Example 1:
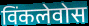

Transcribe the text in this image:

विंकलेवोस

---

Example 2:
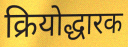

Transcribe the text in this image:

क्रियोद्धारक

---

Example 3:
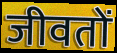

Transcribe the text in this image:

जीवतों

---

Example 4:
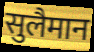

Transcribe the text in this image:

सुलैमान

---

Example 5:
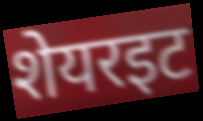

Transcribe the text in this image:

शेयरइट